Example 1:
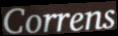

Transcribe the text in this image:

Correns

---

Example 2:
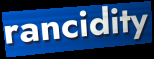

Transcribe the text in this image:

rancidity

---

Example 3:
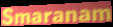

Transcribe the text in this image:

Smaranam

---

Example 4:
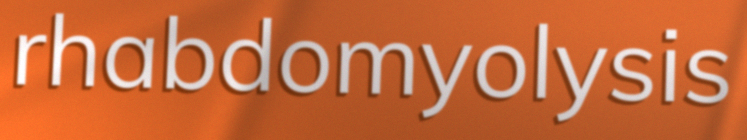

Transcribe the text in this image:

rhabdomyolysis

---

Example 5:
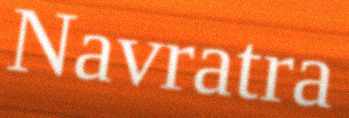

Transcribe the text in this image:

Navratra